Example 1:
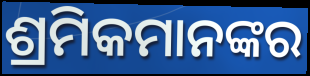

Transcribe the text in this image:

ଶ୍ରମିକମାନଙ୍କର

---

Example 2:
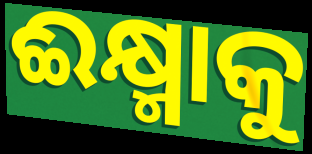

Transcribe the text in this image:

ଈକ୍ଷ୍ମାକୁ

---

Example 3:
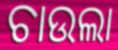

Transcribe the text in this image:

ଚାଉଲା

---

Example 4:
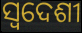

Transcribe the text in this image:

ସ୍ଵଦେଶୀ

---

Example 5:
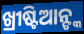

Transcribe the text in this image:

ଖ୍ରୀଷ୍ଟିଆନ୍ଙ୍କ